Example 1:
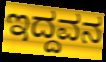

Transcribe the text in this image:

ಇದ್ದವನ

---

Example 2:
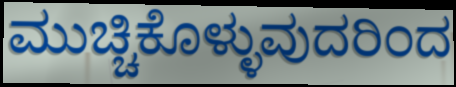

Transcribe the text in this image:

ಮುಚ್ಚಿಕೊಳ್ಳುವುದರಿಂದ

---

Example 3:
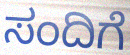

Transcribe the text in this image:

ಸಂದಿಗೆ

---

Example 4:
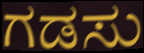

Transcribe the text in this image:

ಗಡಸು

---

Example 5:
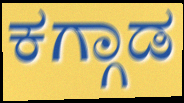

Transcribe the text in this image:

ಕಗ್ಗಾಡ